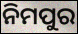
ନିମପୁର